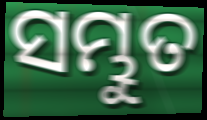
ସମ୍ଭୁତ